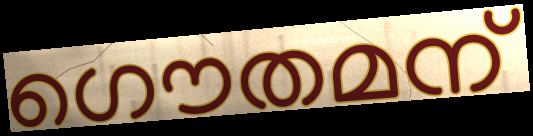
ഗൌതമന്